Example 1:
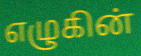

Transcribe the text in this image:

எழுகின்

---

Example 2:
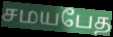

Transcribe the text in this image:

சமயபேத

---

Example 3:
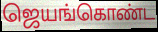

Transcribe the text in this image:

ஜெயங்கொண்ட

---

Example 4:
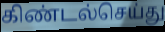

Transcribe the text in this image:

கிண்டல்செய்து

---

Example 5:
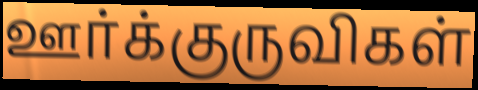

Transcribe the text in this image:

ஊர்க்குருவிகள்